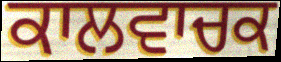
ਕਾਲਵਾਚਕ